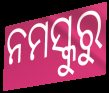
ନମସ୍କୁରୁ